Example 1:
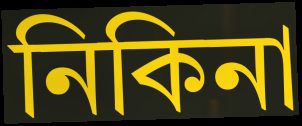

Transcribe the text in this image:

নিকিনা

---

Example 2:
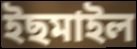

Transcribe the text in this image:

ইছমাইল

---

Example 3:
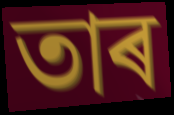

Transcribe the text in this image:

তাৰ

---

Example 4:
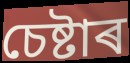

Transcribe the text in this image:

চেষ্টাৰ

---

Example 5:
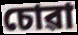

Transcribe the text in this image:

চোৱা